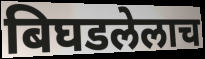
बिघडलेलाच